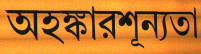
অহঙ্কারশূন্যতা